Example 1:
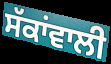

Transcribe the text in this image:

ਸੱਕਾਂਵਾਲੀ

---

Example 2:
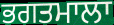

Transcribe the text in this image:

ਭਗਤਮਾਲਾ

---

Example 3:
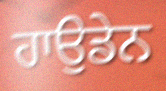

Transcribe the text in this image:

ਹਾਉਡੇਨ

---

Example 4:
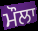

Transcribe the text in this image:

ਮੌਲਾ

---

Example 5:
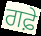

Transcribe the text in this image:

ਗਫ਼ੇ